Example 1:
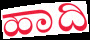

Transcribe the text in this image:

ಹಾದಿ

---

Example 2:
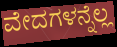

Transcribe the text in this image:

ವೇದಗಳನ್ನೆಲ್ಲ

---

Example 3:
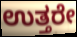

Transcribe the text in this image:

ಉತ್ತರೇ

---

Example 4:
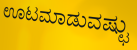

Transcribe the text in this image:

ಊಟಮಾಡುವಷ್ಟು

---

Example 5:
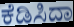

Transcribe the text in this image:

ಕೆಡಿಸಿದಾ